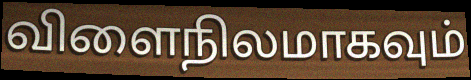
விளைநிலமாகவும்